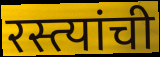
रस्त्यांची